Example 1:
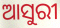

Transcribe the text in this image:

ଆସୁରୀ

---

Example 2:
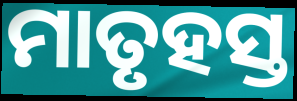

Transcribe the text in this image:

ମାତୃହସ୍ତ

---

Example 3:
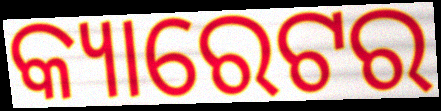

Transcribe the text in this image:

କ୍ୟାରେଟର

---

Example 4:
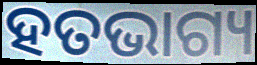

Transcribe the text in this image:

ହତଭାଗ୍ୟ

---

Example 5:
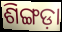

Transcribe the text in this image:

ଶିଙ୍ଗଡ଼ା